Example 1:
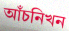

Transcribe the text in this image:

আঁচনিখন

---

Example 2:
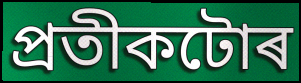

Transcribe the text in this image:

প্ৰতীকটোৰ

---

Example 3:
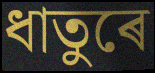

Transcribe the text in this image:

ধাতুৰে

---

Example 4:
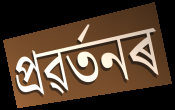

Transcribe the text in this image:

প্ৰৱৰ্তনৰ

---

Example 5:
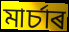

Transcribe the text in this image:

মাৰ্চাৰ